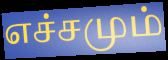
எச்சமும்